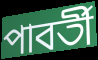
পাবর্তী